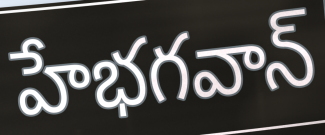
హేభగవాన్